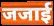
जजाई